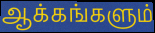
ஆக்கங்களும்